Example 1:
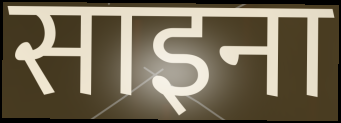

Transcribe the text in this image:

साइना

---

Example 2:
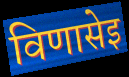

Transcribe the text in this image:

विणासेइ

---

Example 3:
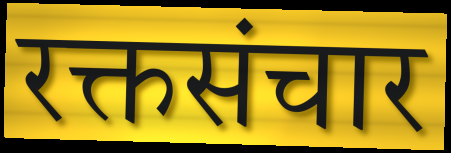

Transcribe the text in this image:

रक्तसंचार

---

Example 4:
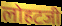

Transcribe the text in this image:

लोहटजी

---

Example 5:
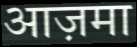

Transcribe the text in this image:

आज़मा